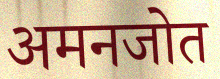
अमनजोत